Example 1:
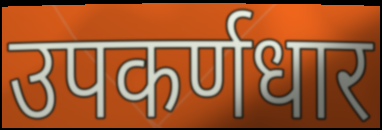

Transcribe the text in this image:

उपकर्णधार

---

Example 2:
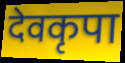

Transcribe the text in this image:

देवकृपा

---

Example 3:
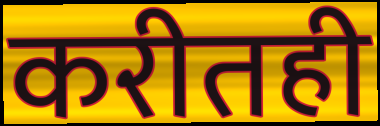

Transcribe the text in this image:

करीतही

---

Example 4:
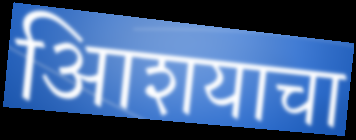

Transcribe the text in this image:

आिशयाचा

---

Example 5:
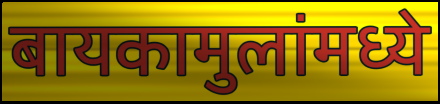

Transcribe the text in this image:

बायकामुलांमध्ये